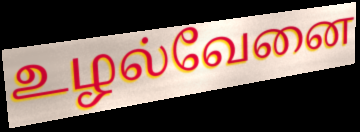
உழல்வேனை